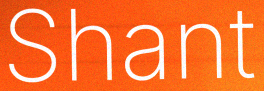
Shant